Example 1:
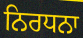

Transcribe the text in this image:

ਨਿਰਧਨਾ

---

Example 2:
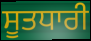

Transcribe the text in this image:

ਸੂਤਧਾਰੀ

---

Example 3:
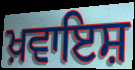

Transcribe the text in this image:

ਖ਼ਵਾਇਸ਼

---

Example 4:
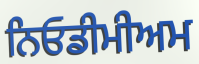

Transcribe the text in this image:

ਨਿਓਡੀਮੀਅਮ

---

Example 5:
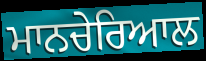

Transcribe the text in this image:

ਮਾਨਚੇਰਿਆਲ